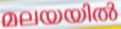
മലയയിൽ